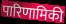
पारिणामिकी